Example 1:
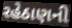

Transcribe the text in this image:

રહેઠાણની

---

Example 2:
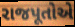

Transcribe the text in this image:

રાજપૂતોએ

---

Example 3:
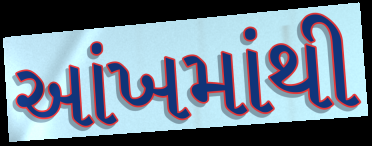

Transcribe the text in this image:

આંખમાંથી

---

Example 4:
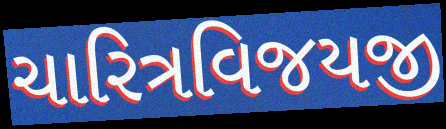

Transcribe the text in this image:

ચારિત્રવિજયજી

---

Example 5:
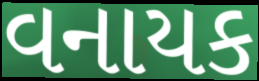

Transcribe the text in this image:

વનાયક